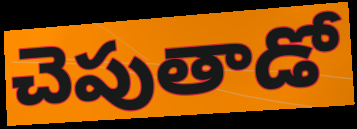
చెపుతాడో